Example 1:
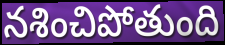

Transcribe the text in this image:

నశించిపోతుంది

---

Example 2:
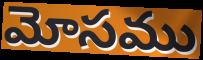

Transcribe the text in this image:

మోసము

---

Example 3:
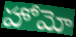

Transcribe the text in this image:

హోమో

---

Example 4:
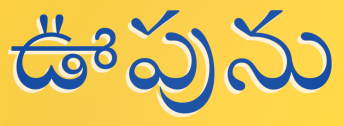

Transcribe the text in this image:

ఊపును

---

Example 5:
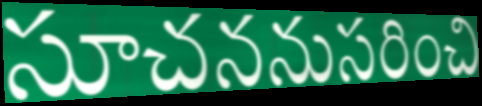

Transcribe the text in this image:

సూచననుసరించి